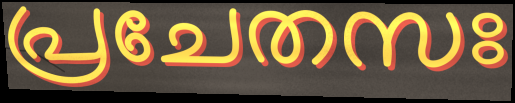
പ്രചേതസഃ